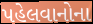
પહેલવાનોના